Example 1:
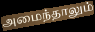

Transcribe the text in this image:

அமைந்தாலும்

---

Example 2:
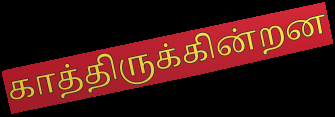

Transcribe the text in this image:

காத்திருக்கின்றன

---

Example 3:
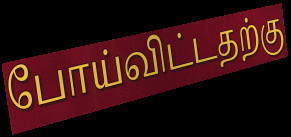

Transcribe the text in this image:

போய்விட்டதற்கு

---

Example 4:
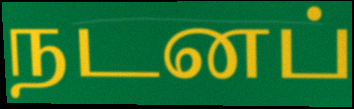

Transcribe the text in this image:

நடனப்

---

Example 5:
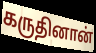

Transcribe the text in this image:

கருதினான்